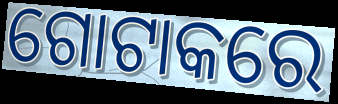
ଗୋଟାକରେ